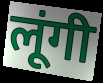
लूंगी